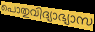
പൊതുവിദ്യാഭ്യാസ